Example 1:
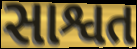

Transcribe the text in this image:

સાશ્વત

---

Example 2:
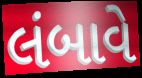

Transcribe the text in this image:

લંબાવે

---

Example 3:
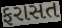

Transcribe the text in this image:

ફરાસત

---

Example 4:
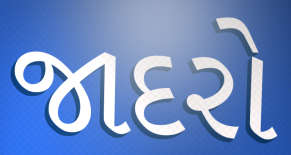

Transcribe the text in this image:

જાદરો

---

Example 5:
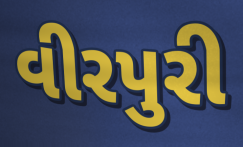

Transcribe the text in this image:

વીરપુરી